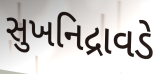
સુખનિદ્રાવડે